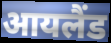
आयलैंड